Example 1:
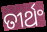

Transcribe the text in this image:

ତୀର୍ଥଂ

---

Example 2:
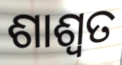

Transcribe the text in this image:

ଶାଶ୍ୱତ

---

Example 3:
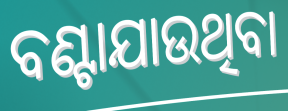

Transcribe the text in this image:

ବଣ୍ଟାଯାଉଥିବା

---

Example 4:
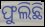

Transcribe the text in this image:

ଫୁଲିଛି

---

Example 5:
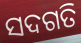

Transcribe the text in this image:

ସଦଗତି